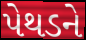
પેથડને